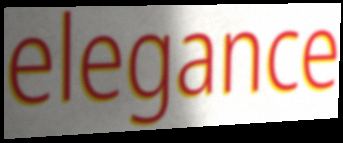
elegance